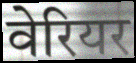
वेरियर